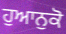
ਹੁਆਨੁਕੋ